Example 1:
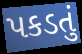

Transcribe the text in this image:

પકડતું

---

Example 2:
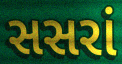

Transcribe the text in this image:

સસરાં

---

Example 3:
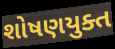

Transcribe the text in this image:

શોષણયુક્ત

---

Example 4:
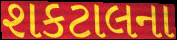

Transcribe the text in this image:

શકટાલના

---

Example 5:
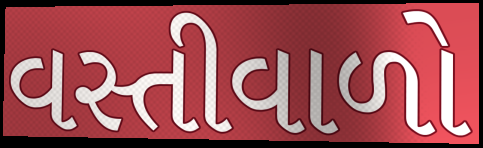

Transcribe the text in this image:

વસ્તીવાળો